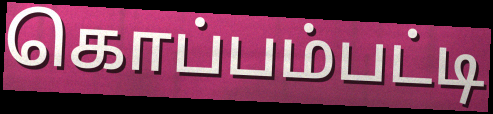
கொப்பம்பட்டி